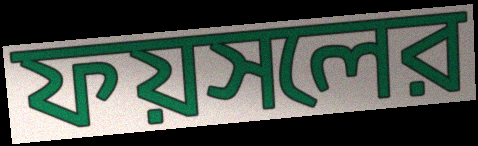
ফয়সলের